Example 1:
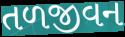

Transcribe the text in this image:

તળજીવન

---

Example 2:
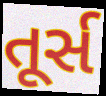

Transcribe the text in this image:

તૂર્સ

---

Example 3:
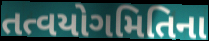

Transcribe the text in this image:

તત્વયોગમિતિના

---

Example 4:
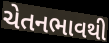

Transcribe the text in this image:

ચેતનભાવથી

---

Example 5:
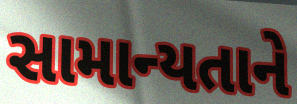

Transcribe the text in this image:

સામાન્યતાને